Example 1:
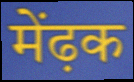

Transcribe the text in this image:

मेंढ़क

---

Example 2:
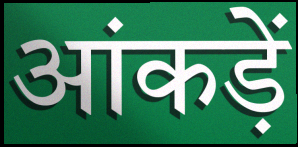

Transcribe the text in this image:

आंकड़ें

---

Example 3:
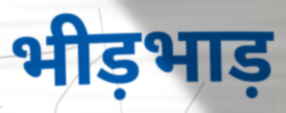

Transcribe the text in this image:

भीड़भाड़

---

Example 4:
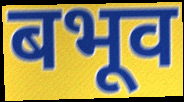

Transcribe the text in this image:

बभूव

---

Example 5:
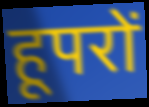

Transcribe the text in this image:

हूपरों